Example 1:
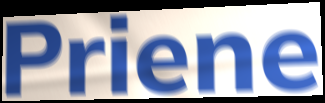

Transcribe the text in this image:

Priene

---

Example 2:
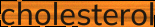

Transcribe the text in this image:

cholesterol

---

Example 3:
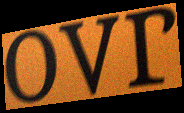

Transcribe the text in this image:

ovr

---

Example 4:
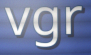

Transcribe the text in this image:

vgr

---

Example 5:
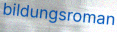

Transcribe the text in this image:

bildungsroman